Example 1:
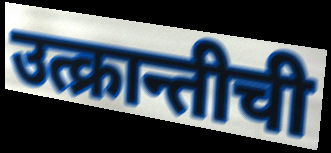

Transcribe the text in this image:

उत्क्रान्तीची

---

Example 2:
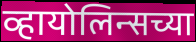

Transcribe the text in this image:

व्हायोलिन्सच्या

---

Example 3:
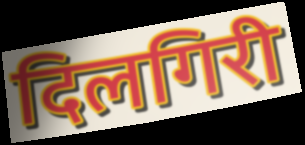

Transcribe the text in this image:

दिलगिरी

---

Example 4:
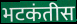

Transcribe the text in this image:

भटकंतीस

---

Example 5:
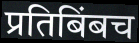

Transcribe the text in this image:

प्रतिबिंबच